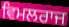
ਵਿਮਲਰਾਜ